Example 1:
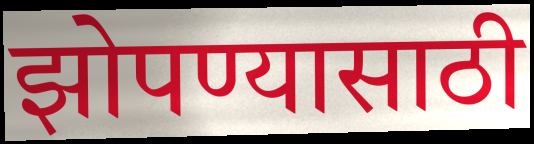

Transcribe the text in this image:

झोपण्यासाठी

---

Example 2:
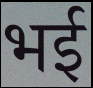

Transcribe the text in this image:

भई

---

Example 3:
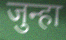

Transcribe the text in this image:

जुन्हा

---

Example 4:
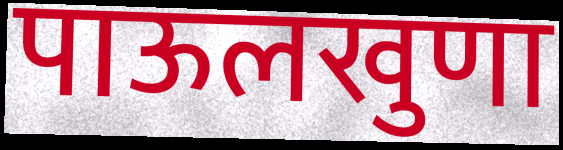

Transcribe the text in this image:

पाऊलखुणा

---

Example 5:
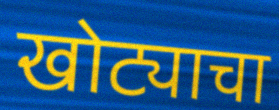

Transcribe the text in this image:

खोट्याचा